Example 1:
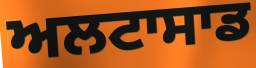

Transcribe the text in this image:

ਅਲਟਾਸਾਡ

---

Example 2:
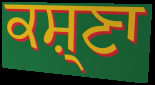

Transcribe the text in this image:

ਕਸ਼੍ਣਾ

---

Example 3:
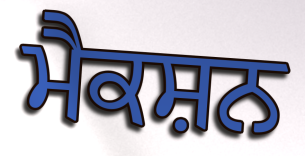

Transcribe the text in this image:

ਮੈਕਸ਼ਨ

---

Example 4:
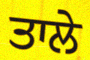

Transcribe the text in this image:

ਤਾਲੇ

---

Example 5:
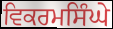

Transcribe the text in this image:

ਵਿਕਰਮਸਿੰਘੇ